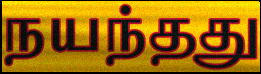
நயந்தது